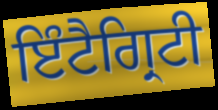
ਇੰਟੈਗ੍ਰਿਟੀ